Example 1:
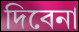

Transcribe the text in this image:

দিবেনা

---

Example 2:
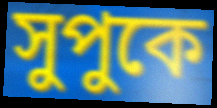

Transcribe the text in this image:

সুপুকে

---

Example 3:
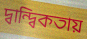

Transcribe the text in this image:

দ্বান্দ্বিকতায়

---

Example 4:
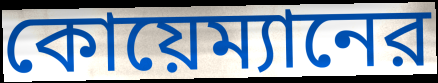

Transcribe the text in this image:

কোয়েম্যানের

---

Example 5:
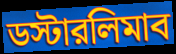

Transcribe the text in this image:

ডস্টারলিমাব